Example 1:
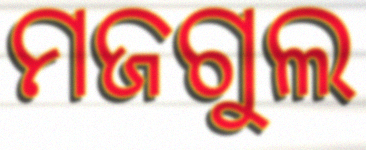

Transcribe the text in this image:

ମଜଗୁଲ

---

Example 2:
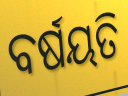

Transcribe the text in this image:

ବର୍ଷୟତି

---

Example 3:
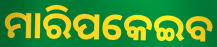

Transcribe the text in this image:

ମାରିପକେଇବ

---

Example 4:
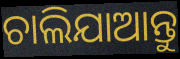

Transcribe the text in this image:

ଚାଲିଯାଆନ୍ତୁ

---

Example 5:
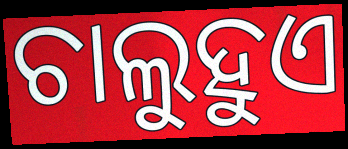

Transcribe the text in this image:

ଚାଲୁହୁଏ